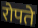
रोपते